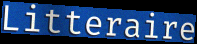
Litteraire